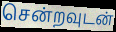
சென்றவுடன்